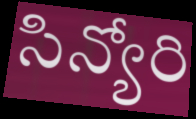
సిన్యోరి